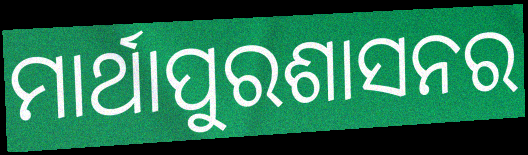
ମାର୍ଥାପୁରଶାସନର